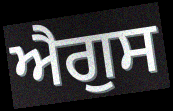
ਐਗੁਸ